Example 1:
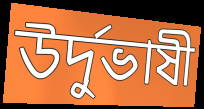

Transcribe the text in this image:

উর্দুভাষী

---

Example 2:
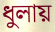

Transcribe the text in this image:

ধুলায়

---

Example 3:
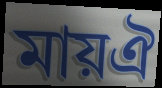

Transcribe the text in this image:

মায়ঐ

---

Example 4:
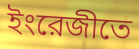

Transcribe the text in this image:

ইংরেজীতে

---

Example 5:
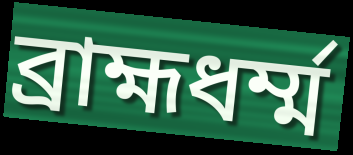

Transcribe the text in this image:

ব্রাহ্মধর্ম্ম